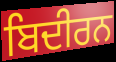
ਬਿਦੀਰਨ